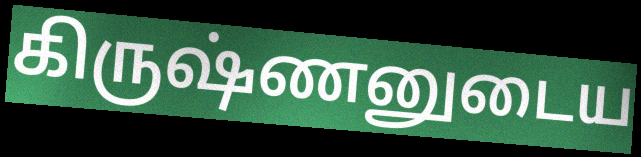
கிருஷ்ணனுடைய